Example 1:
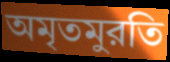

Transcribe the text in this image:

অমৃতমুরতি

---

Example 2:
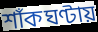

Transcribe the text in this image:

শাঁকঘণ্টায়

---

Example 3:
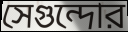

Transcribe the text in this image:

সেগুন্দোর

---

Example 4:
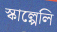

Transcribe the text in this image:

স্কাল্পেলি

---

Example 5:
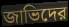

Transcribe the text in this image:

জাভিদের